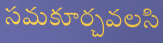
సమకూర్చవలసి